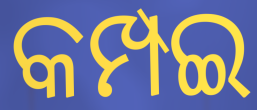
କମ୍ପଇ